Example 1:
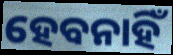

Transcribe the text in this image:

ହେବନାହିଁ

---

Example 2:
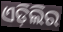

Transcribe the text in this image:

ଏଡ଼ିଲିର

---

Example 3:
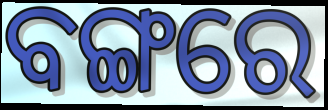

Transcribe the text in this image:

ବଙ୍ଗରେ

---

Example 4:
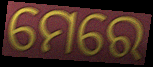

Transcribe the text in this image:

ମେରେ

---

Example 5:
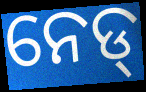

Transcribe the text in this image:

ନେଡ୍